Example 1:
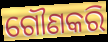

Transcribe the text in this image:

ଗୌଣକରି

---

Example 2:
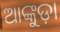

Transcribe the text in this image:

ଆଙ୍କୁଡ଼ା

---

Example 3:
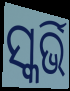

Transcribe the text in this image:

ସ୍କର୍ଭି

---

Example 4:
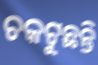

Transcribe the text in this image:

ଚକଟୁଛନ୍ତି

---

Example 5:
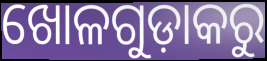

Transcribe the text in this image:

ଖୋଳଗୁଡ଼ାକରୁ